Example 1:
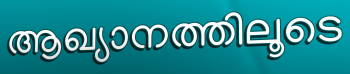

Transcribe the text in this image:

ആഖ്യാനത്തിലൂടെ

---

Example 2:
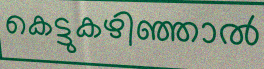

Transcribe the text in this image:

കെട്ടുകഴിഞ്ഞാൽ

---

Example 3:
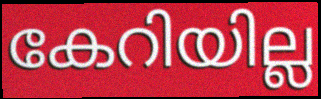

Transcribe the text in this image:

കേറിയില്ല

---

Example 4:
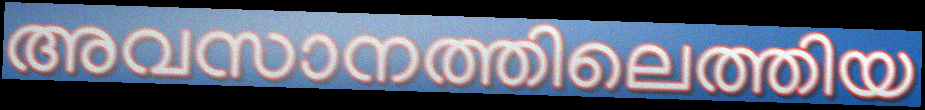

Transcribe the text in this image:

അവസാനത്തിലെത്തിയ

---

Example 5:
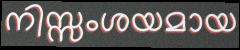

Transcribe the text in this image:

നിസ്സംശയമായ